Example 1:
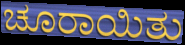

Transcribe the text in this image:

ಚೂರಾಯಿತು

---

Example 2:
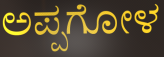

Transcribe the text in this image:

ಅಪ್ಪಗೋಳ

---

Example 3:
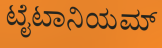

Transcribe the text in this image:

ಟೈಟಾನಿಯಮ್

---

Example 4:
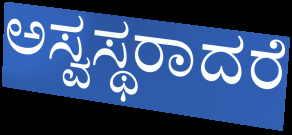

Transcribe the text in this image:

ಅಸ್ವಸ್ಥರಾದರೆ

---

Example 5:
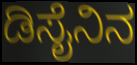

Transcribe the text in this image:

ಡಿಸೈನಿನ